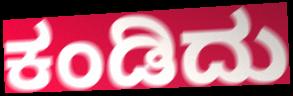
ಕಂಡಿದು